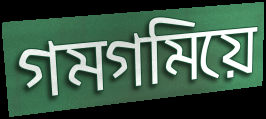
গমগমিয়ে